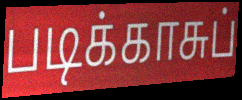
படிக்காசுப்